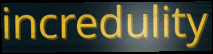
incredulity